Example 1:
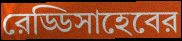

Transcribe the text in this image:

রেড্ডিসাহেবের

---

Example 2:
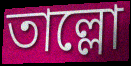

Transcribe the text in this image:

তাল্লো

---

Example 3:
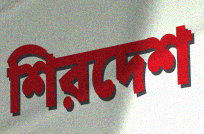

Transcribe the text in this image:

শিরদেশ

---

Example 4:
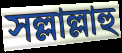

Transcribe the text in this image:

সল্লাল্লাহু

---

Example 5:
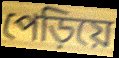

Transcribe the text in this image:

পেড়িয়ে